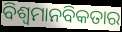
ବିଶ୍ଵମାନବିକତାର